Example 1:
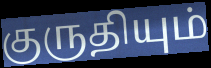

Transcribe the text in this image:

குருதியும்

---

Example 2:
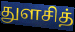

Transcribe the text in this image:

துளசித்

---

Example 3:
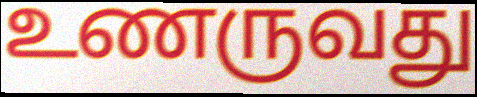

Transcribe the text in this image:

உணருவது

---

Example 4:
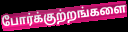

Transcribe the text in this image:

போர்க்குற்றங்களை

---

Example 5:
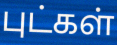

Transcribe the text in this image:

புட்கள்